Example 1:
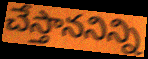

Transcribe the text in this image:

చేస్తాననిన్ని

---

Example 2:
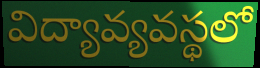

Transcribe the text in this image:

విద్యావ్యవస్థలో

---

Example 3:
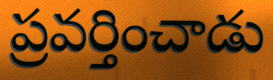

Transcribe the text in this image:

ప్రవర్తించాడు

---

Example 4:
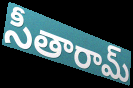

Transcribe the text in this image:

సీతారామ్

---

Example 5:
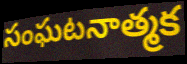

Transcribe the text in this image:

సంఘటనాత్మక